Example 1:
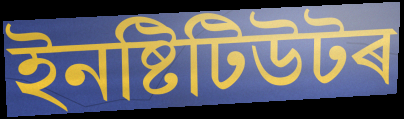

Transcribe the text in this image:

ইনষ্টিটিউটৰ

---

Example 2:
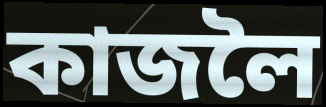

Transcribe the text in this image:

কাজলৈ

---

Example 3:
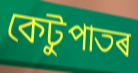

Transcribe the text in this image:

কেটুপাতৰ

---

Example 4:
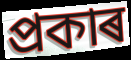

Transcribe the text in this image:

প্ৰকাৰ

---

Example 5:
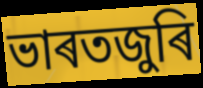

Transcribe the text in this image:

ভাৰতজুৰি